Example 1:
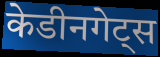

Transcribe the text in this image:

केडीनगेट्स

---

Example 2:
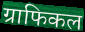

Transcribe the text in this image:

ग्राफिकल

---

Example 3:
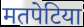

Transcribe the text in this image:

मतपेटिया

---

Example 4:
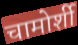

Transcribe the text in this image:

चामोर्शी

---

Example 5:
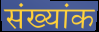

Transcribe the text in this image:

संख्यांक